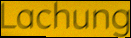
Lachung